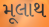
મૂલાથ